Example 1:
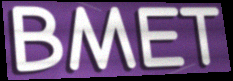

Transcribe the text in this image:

BMET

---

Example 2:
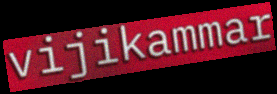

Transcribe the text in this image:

vijikammar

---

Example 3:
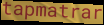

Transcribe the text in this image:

tapmatrar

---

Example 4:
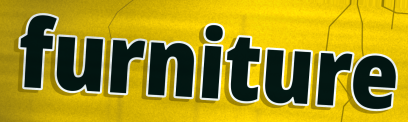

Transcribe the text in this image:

furniture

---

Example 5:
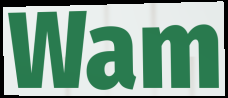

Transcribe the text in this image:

Wam